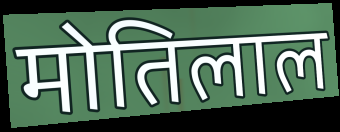
मोतिलाल